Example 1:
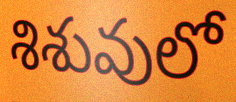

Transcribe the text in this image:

శిశువులో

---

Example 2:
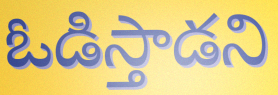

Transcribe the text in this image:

ఓడిస్తాడని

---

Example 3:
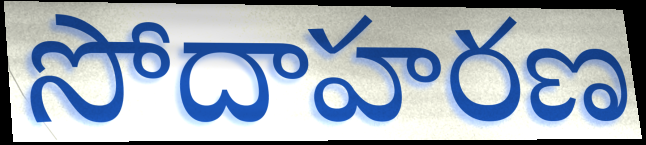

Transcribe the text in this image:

సోదాహరణ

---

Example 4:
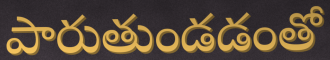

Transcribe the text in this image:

పారుతుండడంతో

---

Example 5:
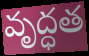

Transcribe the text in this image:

వృద్ధత